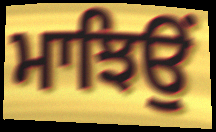
ਮਾਝਿਉਂ